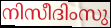
നിസീദിംസു